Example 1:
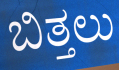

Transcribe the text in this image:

ಬಿತ್ತಲು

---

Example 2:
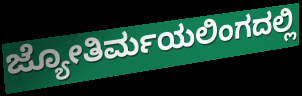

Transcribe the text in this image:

ಜ್ಯೋತಿರ್ಮಯಲಿಂಗದಲ್ಲಿ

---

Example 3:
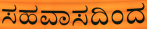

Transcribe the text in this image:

ಸಹವಾಸದಿಂದ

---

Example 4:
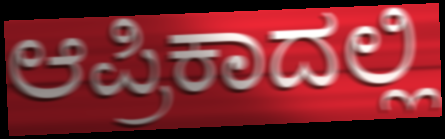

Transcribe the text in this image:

ಆಪ್ರಿಕಾದಲ್ಲಿ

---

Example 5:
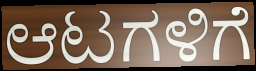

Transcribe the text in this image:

ಆಟಗಳಿಗೆ